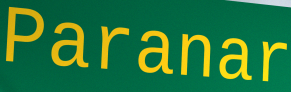
Paranar